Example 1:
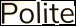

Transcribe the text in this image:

Polite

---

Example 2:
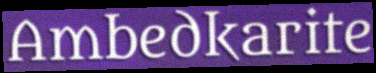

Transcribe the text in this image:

Ambedkarite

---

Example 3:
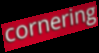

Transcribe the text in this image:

cornering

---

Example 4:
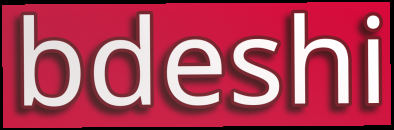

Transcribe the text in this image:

bdeshi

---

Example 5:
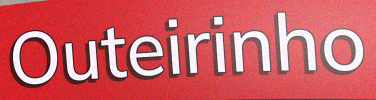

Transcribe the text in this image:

Outeirinho